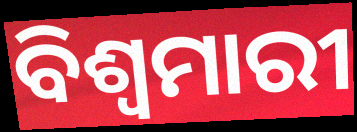
ବିଶ୍ୱମାରୀ